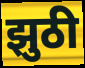
झुठी